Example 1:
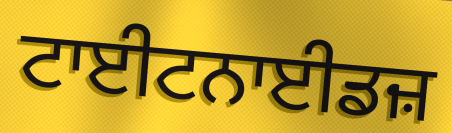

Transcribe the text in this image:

ਟਾਈਟਨਾਈਡਜ਼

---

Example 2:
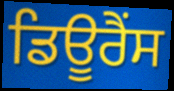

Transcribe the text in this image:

ਡਿਊਰੈਂਸ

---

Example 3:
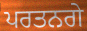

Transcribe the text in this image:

ਪਰਤਨਗੇ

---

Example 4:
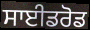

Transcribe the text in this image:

ਸਾਈਡਰੋਡ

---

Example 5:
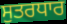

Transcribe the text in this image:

ਸੁਤਰਧਾਰ